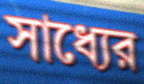
সাধ্যের